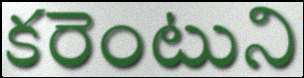
కరెంటుని